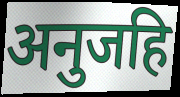
अनुजहि